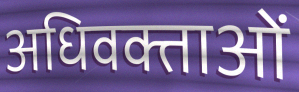
अधिवक्ताओं